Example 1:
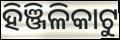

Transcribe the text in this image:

ହିଞ୍ଜିଳିକାଟୁ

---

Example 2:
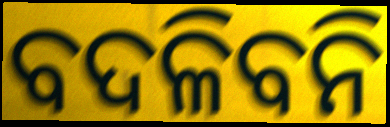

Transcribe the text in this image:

ବଦଳିବନି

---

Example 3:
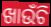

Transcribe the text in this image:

ଖାଉଁଚି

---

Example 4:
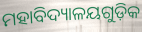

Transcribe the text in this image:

ମହାବିଦ୍ୟାଳୟଗୁଡ଼ିକ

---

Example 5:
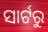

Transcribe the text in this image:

ସାର୍ଟରୁ